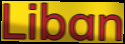
Liban